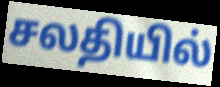
சலதியில்